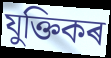
যুক্তিকৰ